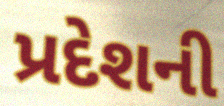
પ્રદેશની